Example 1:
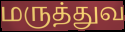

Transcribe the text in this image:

மருத்துவ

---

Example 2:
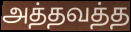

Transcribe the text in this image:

அத்தவத்த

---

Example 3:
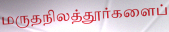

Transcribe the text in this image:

மருதநிலத்தூர்களைப்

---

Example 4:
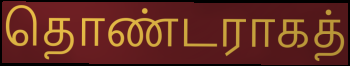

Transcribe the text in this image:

தொண்டராகத்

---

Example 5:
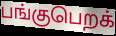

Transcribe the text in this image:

பங்குபெறக்